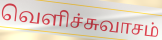
வெளிச்சுவாசம்